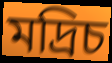
মদ্রিচ